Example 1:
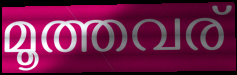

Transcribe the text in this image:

മൂത്തവര്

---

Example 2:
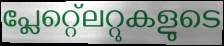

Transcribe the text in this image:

പ്ലേറ്റ്ലെറ്റുകളുടെ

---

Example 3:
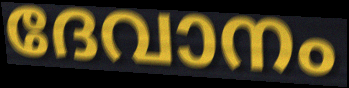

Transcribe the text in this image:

ദേവാനം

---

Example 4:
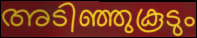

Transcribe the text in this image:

അടിഞ്ഞുകൂടും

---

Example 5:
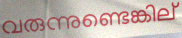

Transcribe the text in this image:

വരുന്നുണ്ടെങ്കില്